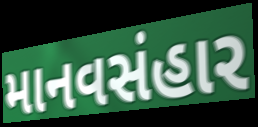
માનવસંહાર